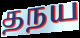
தநய